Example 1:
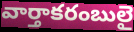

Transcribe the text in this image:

వార్తాకరంబులై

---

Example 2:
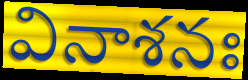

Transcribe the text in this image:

వినాశనః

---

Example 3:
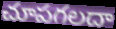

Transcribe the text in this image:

చూపగలదా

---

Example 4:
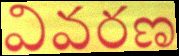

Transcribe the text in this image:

వివరణ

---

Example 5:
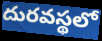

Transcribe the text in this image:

దురవస్థలో